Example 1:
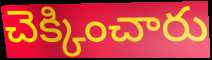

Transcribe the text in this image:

చెక్కించారు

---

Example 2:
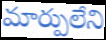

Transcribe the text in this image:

మార్పులేని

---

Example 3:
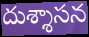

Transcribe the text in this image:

దుశ్శాసన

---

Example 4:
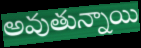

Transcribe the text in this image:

అవుతున్నాయి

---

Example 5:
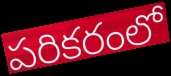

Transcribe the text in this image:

పరికరంలో